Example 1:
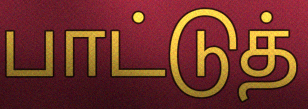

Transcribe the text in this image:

பாட்டுத்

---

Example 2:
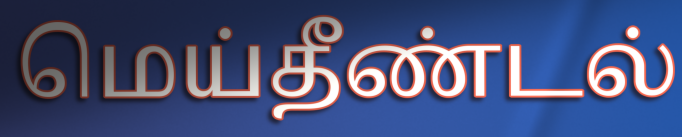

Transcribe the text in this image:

மெய்தீண்டல்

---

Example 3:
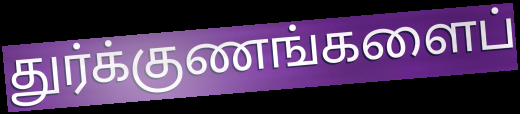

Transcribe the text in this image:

துர்க்குணங்களைப்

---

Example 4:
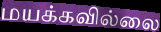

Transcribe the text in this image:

மயக்கவில்லை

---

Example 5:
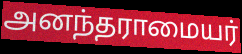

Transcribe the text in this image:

அனந்தராமையர்